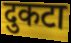
दुकटा